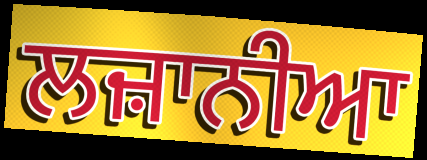
ਲਜ਼ਾਨੀਆ